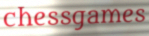
chessgames